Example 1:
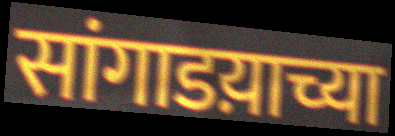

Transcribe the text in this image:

सांगाडय़ाच्या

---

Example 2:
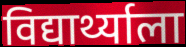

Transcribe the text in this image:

विद्यार्थ्याला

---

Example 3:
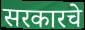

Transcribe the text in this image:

सरकारचे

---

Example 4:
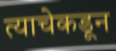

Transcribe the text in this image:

त्याचेकडून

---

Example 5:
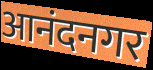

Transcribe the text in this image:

आनंदनगर